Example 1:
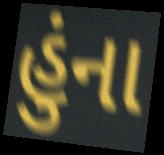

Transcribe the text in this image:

હુંના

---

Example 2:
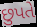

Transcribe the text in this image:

છુપતે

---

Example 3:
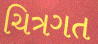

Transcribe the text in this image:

ચિત્રગત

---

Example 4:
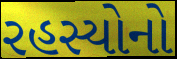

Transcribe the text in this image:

રહસ્યોનો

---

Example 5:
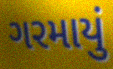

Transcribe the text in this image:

ગરમાયું